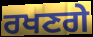
ਰਖਣਗੇ